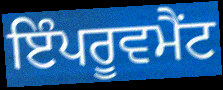
ਇੰਪਰੂਵਮੈਂਟ